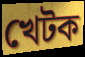
খেটক